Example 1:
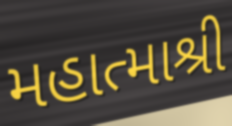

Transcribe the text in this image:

મહાત્માશ્રી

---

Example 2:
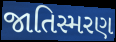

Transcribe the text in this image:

જાતિસ્મરણ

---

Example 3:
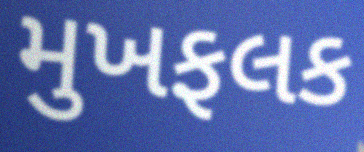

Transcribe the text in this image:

મુખફલક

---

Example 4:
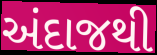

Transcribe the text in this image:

અંદાજથી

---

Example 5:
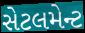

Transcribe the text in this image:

સેટલમેન્ટ